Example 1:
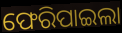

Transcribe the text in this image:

ଫେରିପାଇଲା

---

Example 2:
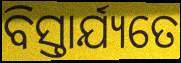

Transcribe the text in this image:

ବିସ୍ତାର୍ଯ୍ୟତେ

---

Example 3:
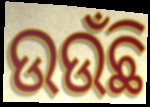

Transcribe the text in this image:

ଉଉଁଛି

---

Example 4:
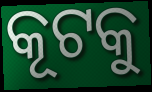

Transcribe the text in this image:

କୂଟକୁ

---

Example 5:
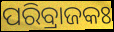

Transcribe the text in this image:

ପରିବ୍ରାଜକଃ